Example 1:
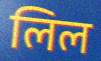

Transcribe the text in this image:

लिल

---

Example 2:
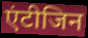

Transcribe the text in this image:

एंटीजिन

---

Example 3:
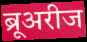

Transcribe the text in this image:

ब्रूअरीज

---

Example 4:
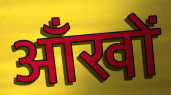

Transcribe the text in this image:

आँखों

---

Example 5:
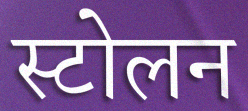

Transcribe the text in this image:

स्टोलन